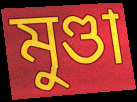
মুণ্ডা